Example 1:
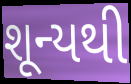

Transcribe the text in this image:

શૂન્યથી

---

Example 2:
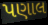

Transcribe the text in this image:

પણાલ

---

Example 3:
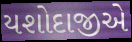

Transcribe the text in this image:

યશોદાજીએ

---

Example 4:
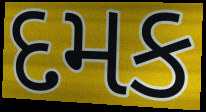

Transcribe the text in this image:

દમક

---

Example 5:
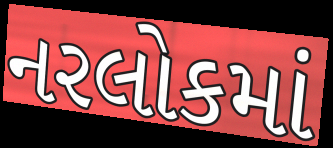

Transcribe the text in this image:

નરલોકમાં